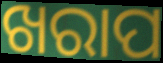
ଖରାପ